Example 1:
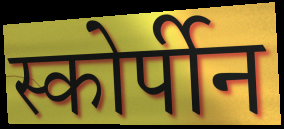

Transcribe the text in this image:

स्कोर्पीन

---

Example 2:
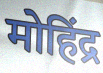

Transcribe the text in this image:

मोहिंद्र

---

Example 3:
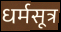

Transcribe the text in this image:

धर्मसूत्र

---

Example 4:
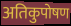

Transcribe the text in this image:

अतिकुपोषण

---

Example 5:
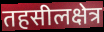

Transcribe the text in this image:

तहसीलक्षेत्र